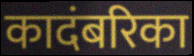
कादंबरिका